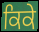
ਕਿਕੇ